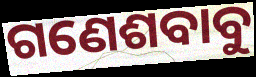
ଗଣେଶବାବୁ